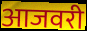
आजवरी